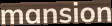
mansion